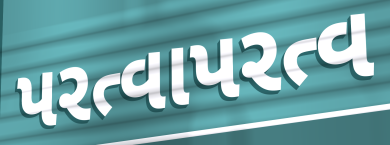
પરત્વાપરત્વ